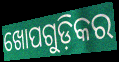
ଖୋପଗୁଡ଼ିକର